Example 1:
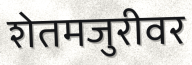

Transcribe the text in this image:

शेतमजुरीवर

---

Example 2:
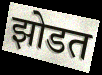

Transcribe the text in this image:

झोडत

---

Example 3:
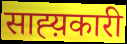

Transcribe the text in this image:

साह्य़कारी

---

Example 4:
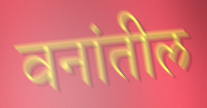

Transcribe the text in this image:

वनांतील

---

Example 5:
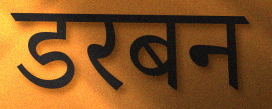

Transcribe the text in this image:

डरबन